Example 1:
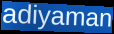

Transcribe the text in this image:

adiyaman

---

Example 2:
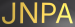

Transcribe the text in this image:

JNPA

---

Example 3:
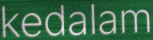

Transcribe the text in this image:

kedalam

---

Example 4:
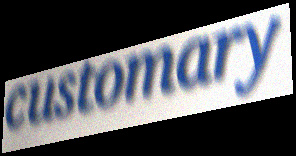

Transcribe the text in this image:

customary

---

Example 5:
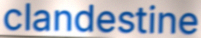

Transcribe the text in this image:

clandestine